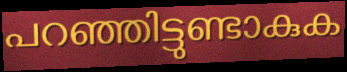
പറഞ്ഞിട്ടുണ്ടാകുക